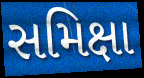
સમિક્ષા